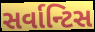
સર્વાન્ટિસ